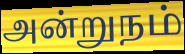
அன்றுநம்